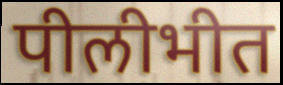
पीलीभीत